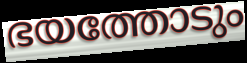
ഭയത്തോടും